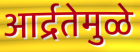
आर्द्रतेमुळे